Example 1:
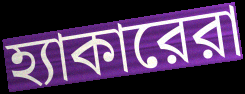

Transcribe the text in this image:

হ্যাকারেরা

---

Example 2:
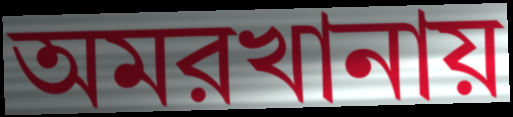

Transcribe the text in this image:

অমরখানায়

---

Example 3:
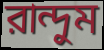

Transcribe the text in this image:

রান্দুম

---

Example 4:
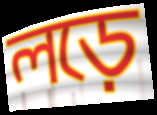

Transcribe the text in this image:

লড়ে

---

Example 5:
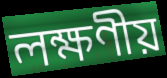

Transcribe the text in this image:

লক্ষণীয়